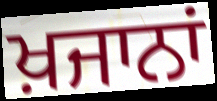
ਖ਼ਜਾਨਾਂ